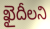
ఖైదీలని